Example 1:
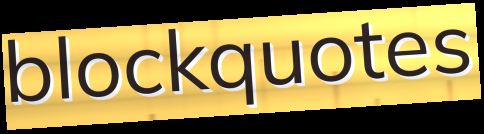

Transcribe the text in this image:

blockquotes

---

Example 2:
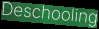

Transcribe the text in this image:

Deschooling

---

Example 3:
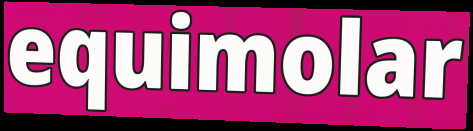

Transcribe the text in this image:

equimolar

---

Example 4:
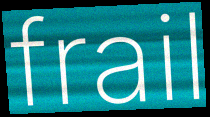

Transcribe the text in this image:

frail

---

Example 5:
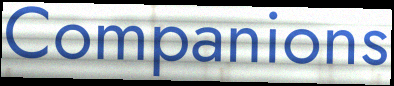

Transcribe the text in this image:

Companions